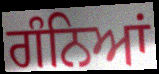
ਗੰਨਿਆਂ